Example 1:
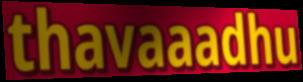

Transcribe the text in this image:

thavaaadhu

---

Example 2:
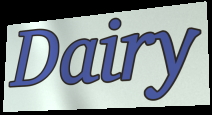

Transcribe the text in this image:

Dairy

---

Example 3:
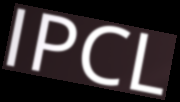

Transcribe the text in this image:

IPCL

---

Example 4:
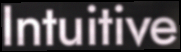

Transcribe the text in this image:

Intuitive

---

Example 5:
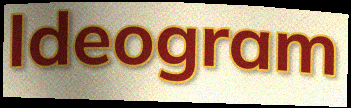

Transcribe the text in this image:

Ideogram